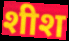
शीश